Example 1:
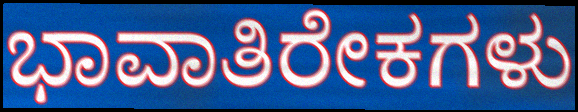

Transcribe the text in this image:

ಭಾವಾತಿರೇಕಗಳು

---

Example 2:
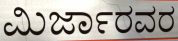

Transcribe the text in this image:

ಮಿರ್ಜಾರವರ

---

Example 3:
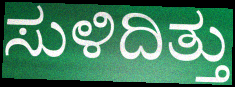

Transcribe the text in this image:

ಸುಳಿದಿತ್ತು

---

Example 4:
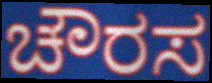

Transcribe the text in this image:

ಚೌರಸ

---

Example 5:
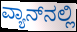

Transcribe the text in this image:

ವ್ಯಾನ್‌ನಲ್ಲಿ